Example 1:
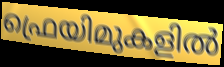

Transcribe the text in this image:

ഫ്രെയിമുകളിൽ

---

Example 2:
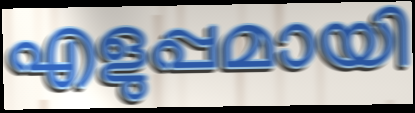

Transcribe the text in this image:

എളുപ്പമായി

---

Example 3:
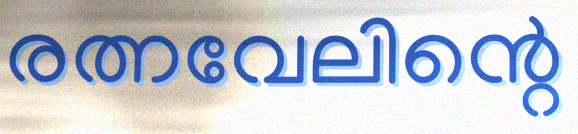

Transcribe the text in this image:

രത്നവേലിന്റെ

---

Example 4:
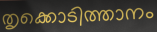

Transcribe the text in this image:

തൃക്കൊടിത്താനം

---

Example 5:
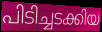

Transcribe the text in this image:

പിടിച്ചടക്കിയ